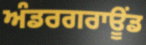
ਅੰਡਰਗਰਾਊੰਡ